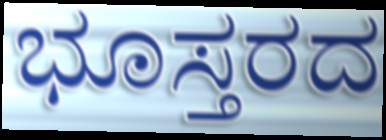
ಭೂಸ್ತರದ